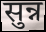
सुन्न